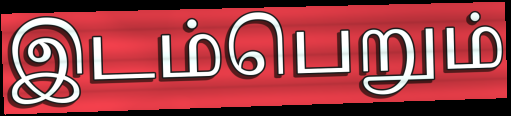
இடம்பெறும்